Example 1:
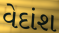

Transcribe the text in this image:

વેદાંશ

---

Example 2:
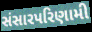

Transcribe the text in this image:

સંસારપરિણામી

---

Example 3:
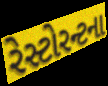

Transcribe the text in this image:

રેસ્ટોરન્ટના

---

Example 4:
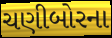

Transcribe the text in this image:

ચણીબોરના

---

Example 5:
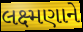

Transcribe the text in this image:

લક્ષ્મણાને